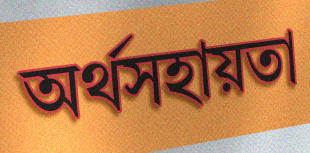
অর্থসহায়তা